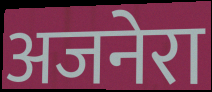
अजनेरा